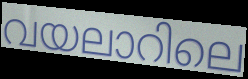
വയലാറിലെ